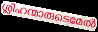
ശ്ലീഹന്മാരുടെമേൽ